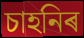
চাহনিৰ